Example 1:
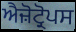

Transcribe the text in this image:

ਐਜ਼ੋਟ੍ਰੋਪਸ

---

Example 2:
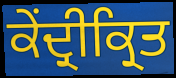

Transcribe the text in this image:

ਕੇਂਦ੍ਰੀਕ੍ਰਿਤ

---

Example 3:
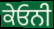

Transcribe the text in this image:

ਕੇਓਨੀ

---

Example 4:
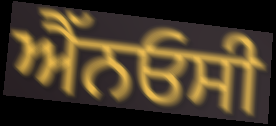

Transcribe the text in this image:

ਐੱਨਓਸੀ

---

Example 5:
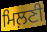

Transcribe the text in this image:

ਮਿਲ਼ਣੀ